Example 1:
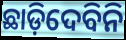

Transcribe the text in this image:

ଛାଡ଼ିଦେବିନି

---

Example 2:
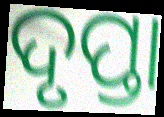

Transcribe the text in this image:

ଦୃପ୍ତା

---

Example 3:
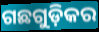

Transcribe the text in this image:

ଗଛଗୁଡ଼ିକର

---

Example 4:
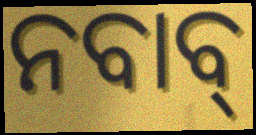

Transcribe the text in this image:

ନବାବ୍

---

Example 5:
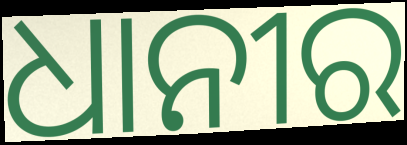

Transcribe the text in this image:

ଧାନୀର